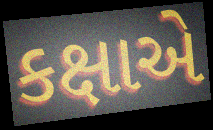
કક્ષાએ